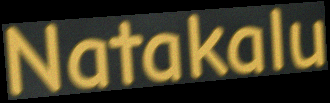
Natakalu